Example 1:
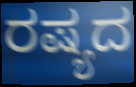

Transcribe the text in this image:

ರಷ್ಯದ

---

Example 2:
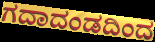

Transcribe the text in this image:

ಗದಾದಂಡದಿಂದ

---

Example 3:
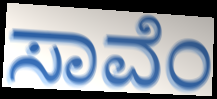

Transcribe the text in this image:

ಸಾವೆಂ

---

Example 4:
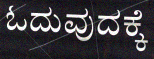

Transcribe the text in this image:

ಓದುವುದಕ್ಕೆ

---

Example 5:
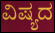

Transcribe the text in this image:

ವಿಷ್ಯದ